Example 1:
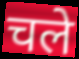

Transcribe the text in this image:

चले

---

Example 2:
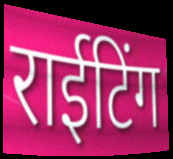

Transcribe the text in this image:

राईटिंग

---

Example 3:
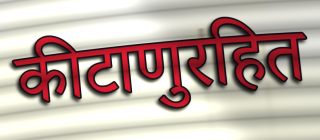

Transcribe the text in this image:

कीटाणुरहित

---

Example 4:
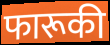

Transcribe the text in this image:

फारूकी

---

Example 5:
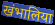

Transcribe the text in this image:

खंभालिया